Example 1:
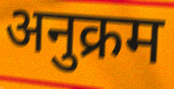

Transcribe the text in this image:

अनुक्रम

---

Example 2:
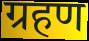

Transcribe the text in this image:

ग्रहण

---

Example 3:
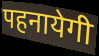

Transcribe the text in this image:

पहनायेगी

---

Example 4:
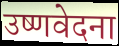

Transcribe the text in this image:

उष्णवेदना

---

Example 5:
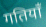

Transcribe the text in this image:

गतियाँ